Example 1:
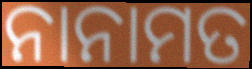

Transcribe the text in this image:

ନାନାମତ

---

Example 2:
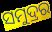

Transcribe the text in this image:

ସମୁଦ୍ରର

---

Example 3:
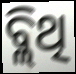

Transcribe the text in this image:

ବ୍ଲିଥି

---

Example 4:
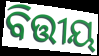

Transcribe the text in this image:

ବିତ୍ତୀୟ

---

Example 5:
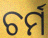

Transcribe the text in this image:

ଚର୍ମ